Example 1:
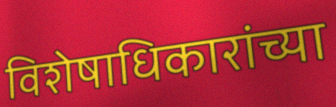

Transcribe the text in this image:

विशेषाधिकारांच्या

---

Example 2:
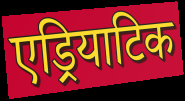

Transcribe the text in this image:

एड्रियाटिक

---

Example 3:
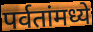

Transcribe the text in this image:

पर्वतांमध्ये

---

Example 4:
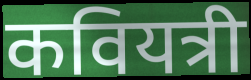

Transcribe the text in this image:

कवियत्री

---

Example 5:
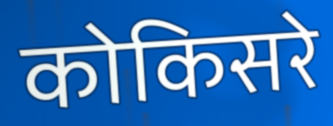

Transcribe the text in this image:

कोकिसरे